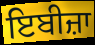
ਇਬੀਜ਼ਾ